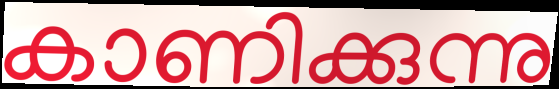
കാണിക്കുന്നു